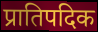
प्रातिपदिक